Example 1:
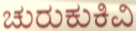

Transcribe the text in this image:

ಚುರುಕುಕಿವಿ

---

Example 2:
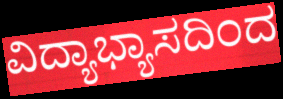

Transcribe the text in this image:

ವಿದ್ಯಾಭ್ಯಾಸದಿಂದ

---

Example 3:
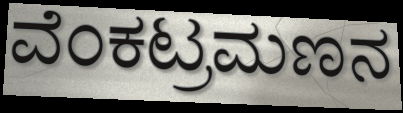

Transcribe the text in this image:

ವೆಂಕಟ್ರಮಣನ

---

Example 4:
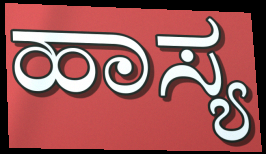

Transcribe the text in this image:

ಹಾಸ್ಯ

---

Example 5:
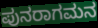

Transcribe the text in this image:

ಪುನರಾಗಮನ